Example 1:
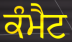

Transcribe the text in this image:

ਕੰਮੈਟ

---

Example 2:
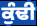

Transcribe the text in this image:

ਕੁੰਢੀ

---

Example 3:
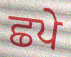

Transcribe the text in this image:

ਛਪੇ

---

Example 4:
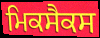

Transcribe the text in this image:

ਮਿਕਸੈਕਸ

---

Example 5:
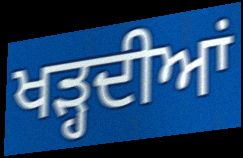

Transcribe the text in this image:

ਖੜ੍ਹਦੀਆਂ